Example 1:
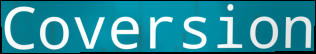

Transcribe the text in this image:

Coversion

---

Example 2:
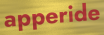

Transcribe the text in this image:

apperide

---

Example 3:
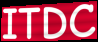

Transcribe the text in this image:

ITDC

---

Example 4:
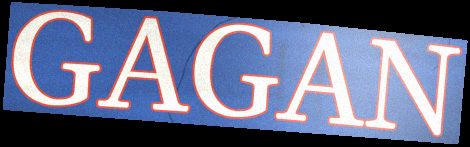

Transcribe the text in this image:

GAGAN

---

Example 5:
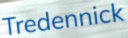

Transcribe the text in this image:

Tredennick